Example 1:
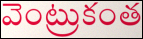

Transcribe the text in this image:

వెంట్రుకంత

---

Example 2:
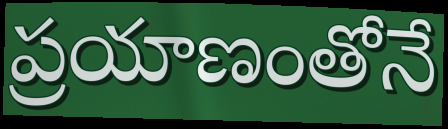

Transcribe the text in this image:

ప్రయాణంతోనే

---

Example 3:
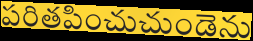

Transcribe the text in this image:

పరితపించుచుండెను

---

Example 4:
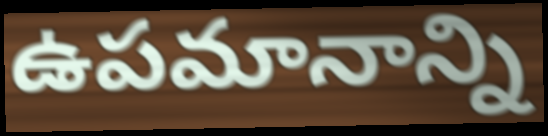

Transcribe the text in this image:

ఉపమానాన్ని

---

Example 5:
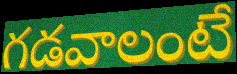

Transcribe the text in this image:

గడవాలంటే